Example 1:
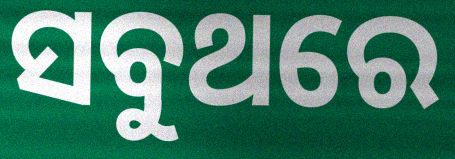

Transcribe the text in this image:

ସବୁଥରେ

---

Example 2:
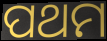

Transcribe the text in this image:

ପଥମ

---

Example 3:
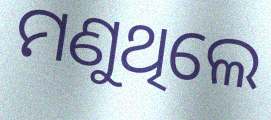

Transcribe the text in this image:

ମଣୁଥିଲେ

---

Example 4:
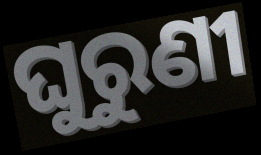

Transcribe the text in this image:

ଘୁରୁଣୀ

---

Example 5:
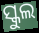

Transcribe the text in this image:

ସ୍କୁଲ